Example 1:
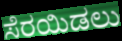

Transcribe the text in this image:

ಸೆರಯಿಡಲು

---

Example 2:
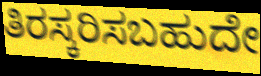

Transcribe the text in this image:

ತಿರಸ್ಕರಿಸಬಹುದೇ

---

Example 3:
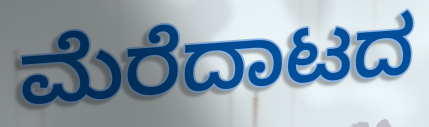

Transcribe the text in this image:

ಮೆರೆದಾಟದ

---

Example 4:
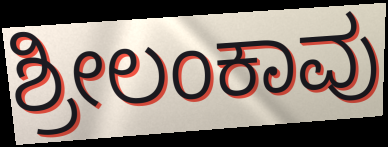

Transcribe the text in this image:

ಶ್ರೀಲಂಕಾವು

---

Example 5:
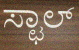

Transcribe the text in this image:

ಸ್ಟಾಲ್